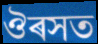
ঔৰসত